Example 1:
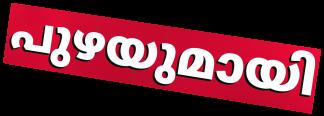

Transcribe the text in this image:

പുഴയുമായി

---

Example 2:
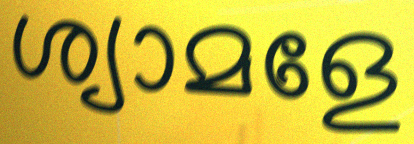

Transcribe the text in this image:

ശ്യാമളേ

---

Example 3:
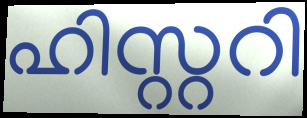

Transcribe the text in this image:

ഹിസ്റ്ററി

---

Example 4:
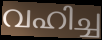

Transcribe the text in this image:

വഹിച്ച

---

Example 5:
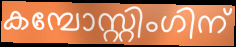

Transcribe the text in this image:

കമ്പോസ്റ്റിംഗിന്